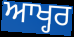
ਆਖ੍ਹਰ